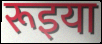
रूइया